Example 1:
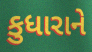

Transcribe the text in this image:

કુધારાને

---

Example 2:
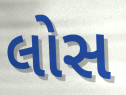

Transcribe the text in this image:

લોસ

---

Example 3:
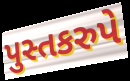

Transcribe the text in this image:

પુસ્તકરુપે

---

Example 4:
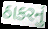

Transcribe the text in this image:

ઠાકરનું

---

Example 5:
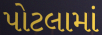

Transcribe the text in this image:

પોટલામાં